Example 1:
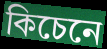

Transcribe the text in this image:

কিচেনে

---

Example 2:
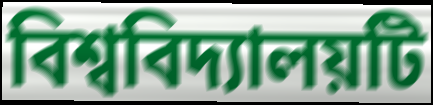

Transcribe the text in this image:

বিশ্ববিদ্যালয়টি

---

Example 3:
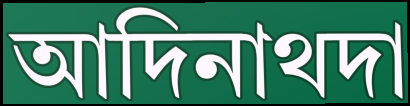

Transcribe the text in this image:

আদিনাথদা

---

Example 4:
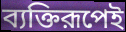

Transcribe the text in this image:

ব্যক্তিরূপেই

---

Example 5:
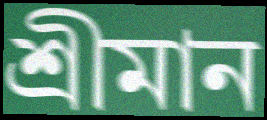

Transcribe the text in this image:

শ্রীমান